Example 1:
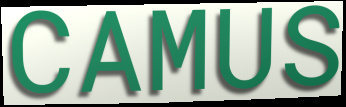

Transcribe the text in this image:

CAMUS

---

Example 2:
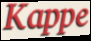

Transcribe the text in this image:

Kappe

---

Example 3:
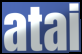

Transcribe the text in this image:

atai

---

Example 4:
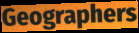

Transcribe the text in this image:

Geographers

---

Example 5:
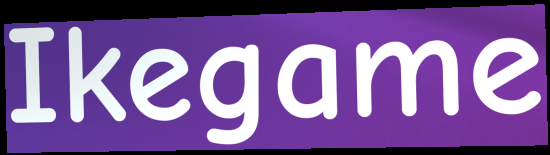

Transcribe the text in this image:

Ikegame